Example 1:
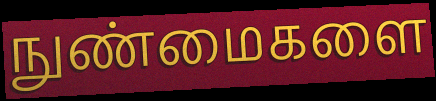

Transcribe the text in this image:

நுண்மைகளை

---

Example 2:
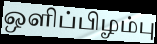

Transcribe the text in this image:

ஒளிப்பிழம்பு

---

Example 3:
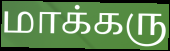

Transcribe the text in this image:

மாக்கரு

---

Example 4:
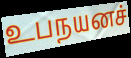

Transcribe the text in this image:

உபநயனச்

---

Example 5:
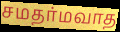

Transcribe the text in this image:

சமதர்மவாத